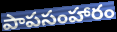
పాపసంహారం